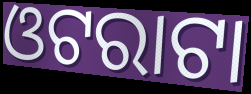
ଓଟରାଟା